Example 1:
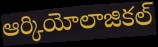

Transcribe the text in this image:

ఆర్కియోలాజికల్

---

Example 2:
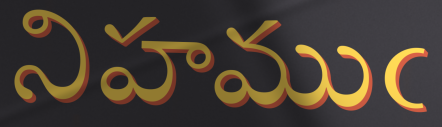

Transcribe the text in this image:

నిహముఁ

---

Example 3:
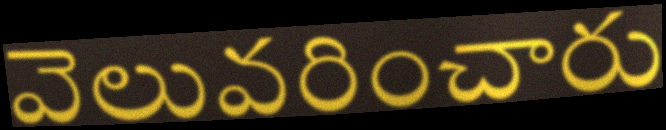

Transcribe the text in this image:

వెలువరించారు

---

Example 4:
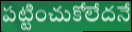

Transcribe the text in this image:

పట్టించుకోలేదనే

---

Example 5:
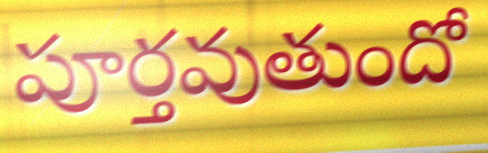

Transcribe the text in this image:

పూర్తవుతుందో